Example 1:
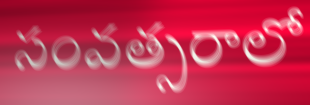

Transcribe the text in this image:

సంవత్సరాలో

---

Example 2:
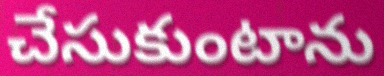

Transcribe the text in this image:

చేసుకుంటాను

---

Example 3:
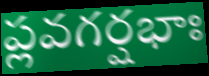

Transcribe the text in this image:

ప్లవగర్షభాః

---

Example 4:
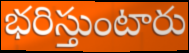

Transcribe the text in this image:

భరిస్తుంటారు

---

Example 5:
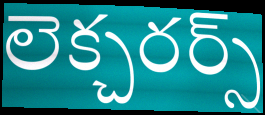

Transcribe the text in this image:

లెక్చరర్స్